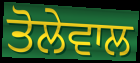
ਤੋਲੇਵਾਲ